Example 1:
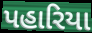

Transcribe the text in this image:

પહારિયા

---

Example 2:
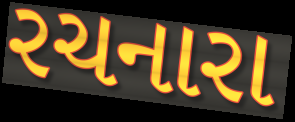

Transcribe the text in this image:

રચનારા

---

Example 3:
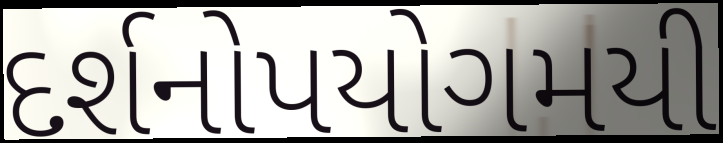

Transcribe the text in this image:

દર્શનોપયોગમયી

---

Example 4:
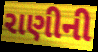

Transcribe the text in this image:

રાણીની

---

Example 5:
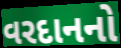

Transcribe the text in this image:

વરદાનનો